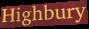
Highbury